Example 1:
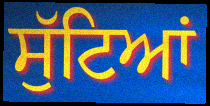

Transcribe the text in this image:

ਸੁੱਟਿਆਂ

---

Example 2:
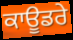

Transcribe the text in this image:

ਕਾਊਡਰੇ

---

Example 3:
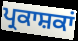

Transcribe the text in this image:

ਪ੍ਰਕਾਸ਼ਕਾਂ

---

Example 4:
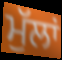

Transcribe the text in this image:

ਮੁੱਲਾਂ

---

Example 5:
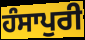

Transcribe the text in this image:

ਹੰਸਾਪੁਰੀ